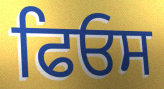
ਫਿਓਸ